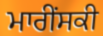
ਮਾਰੀੰਸਕੀ